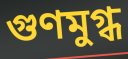
গুণমুগ্ধ